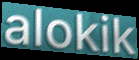
alokik